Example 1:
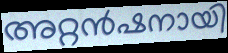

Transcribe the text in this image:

അറ്റൻഷനായി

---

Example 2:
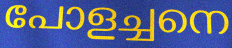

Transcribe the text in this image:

പോളച്ചനെ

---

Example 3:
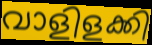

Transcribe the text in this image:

വാളിളക്കി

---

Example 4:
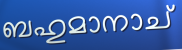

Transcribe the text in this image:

ബഹുമാനാച്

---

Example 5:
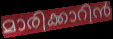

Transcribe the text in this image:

മാരിക്കാറിൻ